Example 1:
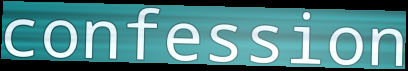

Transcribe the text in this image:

confession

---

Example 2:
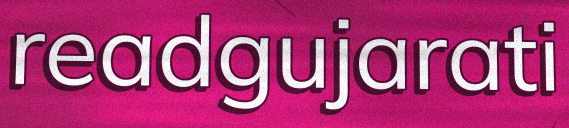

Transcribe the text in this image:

readgujarati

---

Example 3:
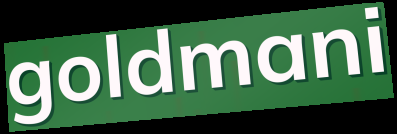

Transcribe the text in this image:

goldmani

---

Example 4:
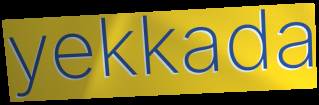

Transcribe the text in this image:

yekkada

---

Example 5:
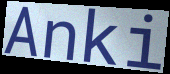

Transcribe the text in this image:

Anki